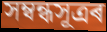
সম্বন্ধসূত্ৰৰ